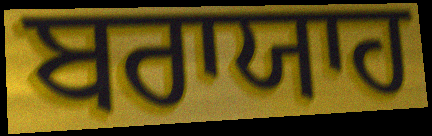
ਬਰਾਯਾਹ